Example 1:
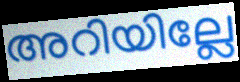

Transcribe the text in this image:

അറിയില്ലേ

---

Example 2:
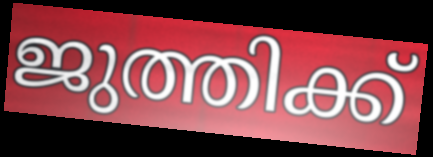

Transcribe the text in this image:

ജുത്തിക്ക്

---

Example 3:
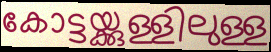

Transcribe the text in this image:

കോട്ടയ്ക്കുള്ളിലുള്ള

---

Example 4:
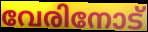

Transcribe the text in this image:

വേരിനോട്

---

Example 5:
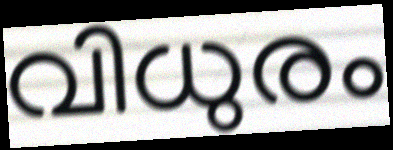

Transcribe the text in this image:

വിധുരം